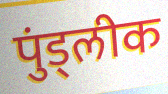
पुंड्लीक